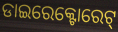
ଡାଇରେକ୍ଟୋରେଟ୍